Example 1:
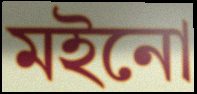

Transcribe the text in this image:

মইনো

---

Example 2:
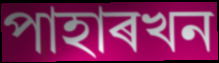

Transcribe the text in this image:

পাহাৰখন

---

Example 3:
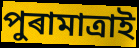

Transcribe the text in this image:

পুৰামাত্ৰাই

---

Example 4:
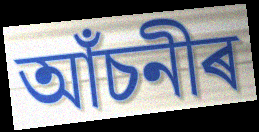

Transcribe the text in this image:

আঁচনীৰ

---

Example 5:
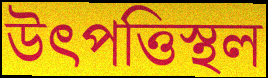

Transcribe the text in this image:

উৎপত্তিস্থল